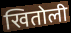
खितोली